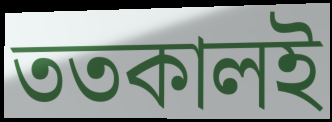
ততকালই